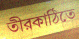
তীরকাঠিতে